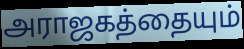
அராஜகத்தையும்